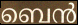
ബെൻ